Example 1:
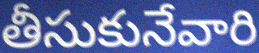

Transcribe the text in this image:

తీసుకునేవారి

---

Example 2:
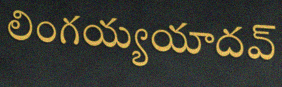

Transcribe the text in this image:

లింగయ్యయాదవ్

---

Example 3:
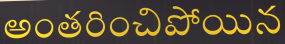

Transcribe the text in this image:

అంతరించిపోయిన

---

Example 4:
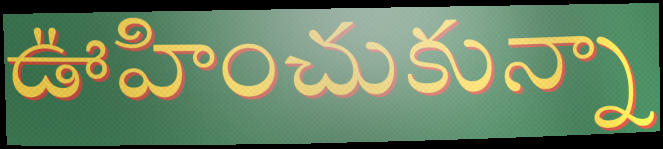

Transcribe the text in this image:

ఊహించుకున్నా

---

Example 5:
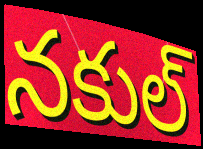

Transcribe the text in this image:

నకుల్